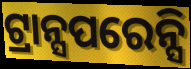
ଟ୍ରାନ୍ସପରେନ୍ସି